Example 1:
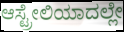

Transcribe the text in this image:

ಆಸ್ಟ್ರೇಲಿಯಾದಲ್ಲೇ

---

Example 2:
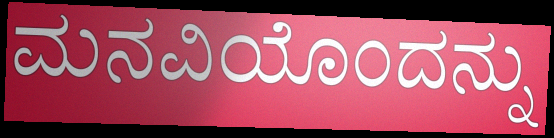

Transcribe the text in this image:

ಮನವಿಯೊಂದನ್ನು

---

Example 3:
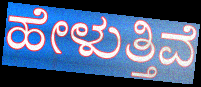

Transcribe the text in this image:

ಹೇಳುತ್ತಿವೆ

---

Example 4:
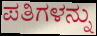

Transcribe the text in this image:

ಪತಿಗಳನ್ನು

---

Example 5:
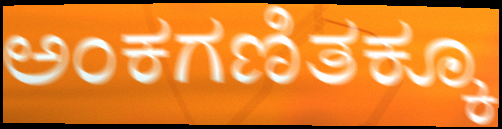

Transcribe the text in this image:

ಅಂಕಗಣಿತಕ್ಕೂ